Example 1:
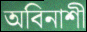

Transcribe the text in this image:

অবিনাশী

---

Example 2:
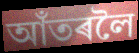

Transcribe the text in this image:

আঁতৰলৈ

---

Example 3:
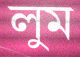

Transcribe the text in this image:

লুম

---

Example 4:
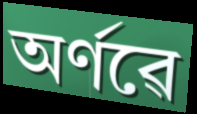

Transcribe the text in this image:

অৰ্ণৱে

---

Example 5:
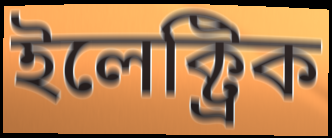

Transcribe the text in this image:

ইলেক্ট্ৰিক